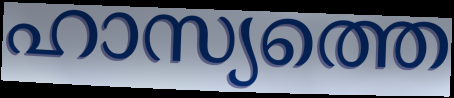
ഹാസ്യത്തെ